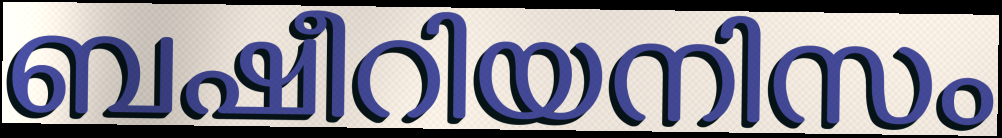
ബഷീറിയനിസം